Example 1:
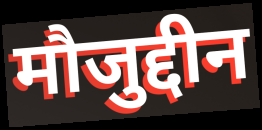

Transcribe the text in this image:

मौजुद्दीन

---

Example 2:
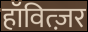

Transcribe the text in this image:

हॉवित्ज़र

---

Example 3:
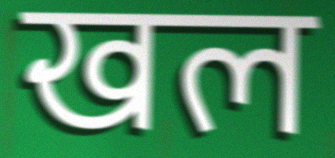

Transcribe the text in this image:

खल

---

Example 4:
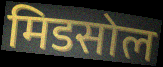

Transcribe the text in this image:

मिडसोल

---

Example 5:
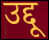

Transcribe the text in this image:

उद्दू